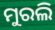
ମୁରଲି